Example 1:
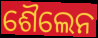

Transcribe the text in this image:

ଶୈଲେନ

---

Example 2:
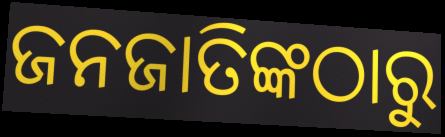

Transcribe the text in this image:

ଜନଜାତିଙ୍କଠାରୁ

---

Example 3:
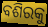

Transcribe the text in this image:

ବଶିରକୁ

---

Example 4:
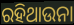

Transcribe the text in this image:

ରହିଥାଉନା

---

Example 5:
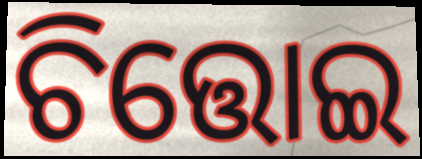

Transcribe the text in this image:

ଚିତ୍ତୋଇ